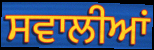
ਸਵਾਲੀਆਂ